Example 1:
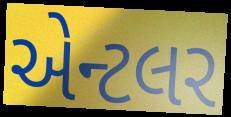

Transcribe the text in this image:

એન્ટલર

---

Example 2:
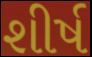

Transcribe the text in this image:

શીર્ષ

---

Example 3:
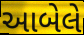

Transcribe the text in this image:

આબેલે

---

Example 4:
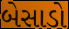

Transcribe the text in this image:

બેસાડો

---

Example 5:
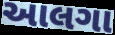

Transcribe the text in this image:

આલગા